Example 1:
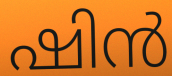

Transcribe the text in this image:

ഷിൻ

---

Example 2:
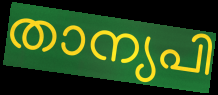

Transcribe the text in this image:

താന്യപി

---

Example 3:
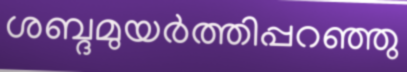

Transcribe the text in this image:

ശബ്ദമുയർത്തിപ്പറഞ്ഞു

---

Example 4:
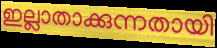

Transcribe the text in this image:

ഇല്ലാതാക്കുന്നതായി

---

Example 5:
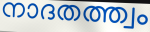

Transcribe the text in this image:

നാദതത്ത്വം